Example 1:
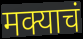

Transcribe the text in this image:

मक्याचं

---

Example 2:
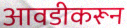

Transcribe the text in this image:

आवडीकरून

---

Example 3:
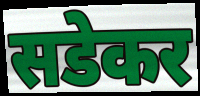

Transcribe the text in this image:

सडेकर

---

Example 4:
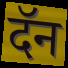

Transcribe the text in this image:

दॅन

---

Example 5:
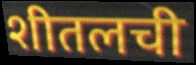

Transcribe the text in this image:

शीतलची